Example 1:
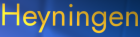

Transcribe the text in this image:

Heyningen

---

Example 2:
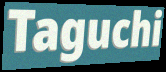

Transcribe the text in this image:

Taguchi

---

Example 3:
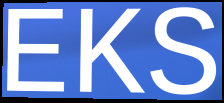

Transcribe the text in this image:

EKS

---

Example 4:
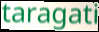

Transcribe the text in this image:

taragati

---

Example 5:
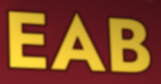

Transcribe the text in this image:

EAB